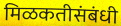
मिळकतीसंबंधी